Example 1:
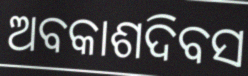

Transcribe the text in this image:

ଅବକାଶଦିବସ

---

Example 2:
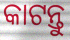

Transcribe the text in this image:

କାଟନ୍ତୁ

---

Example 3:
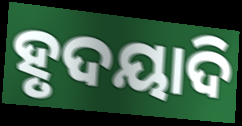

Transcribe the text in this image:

ହୃଦୟାଦି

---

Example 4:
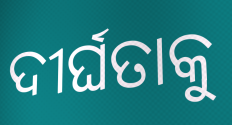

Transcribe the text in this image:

ଦୀର୍ଘତାକୁ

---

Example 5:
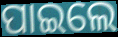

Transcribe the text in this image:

ପାଇଲେ